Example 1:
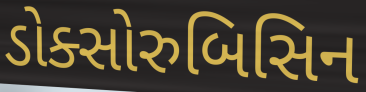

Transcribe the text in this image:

ડોક્સોરુબિસિન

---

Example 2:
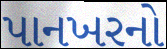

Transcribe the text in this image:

પાનખરનો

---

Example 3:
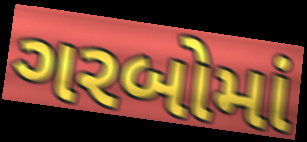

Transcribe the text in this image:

ગરબોમાં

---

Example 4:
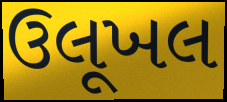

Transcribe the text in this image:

ઉલૂખલ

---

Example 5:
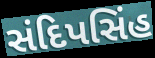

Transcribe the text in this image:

સંદિપસિંહ